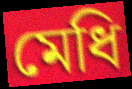
মেধি